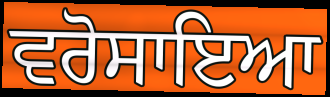
ਵਰੋਸਾਇਆ